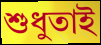
শুধুতাই